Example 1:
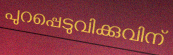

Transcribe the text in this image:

പുറപ്പെടുവിക്കുവിന്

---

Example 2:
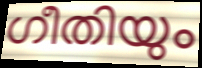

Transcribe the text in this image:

ഗീതിയും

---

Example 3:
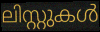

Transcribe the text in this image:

ലിസ്റ്റുകൾ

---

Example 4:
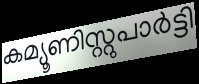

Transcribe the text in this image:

കമ്യൂണിസ്റ്റുപാർട്ടി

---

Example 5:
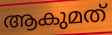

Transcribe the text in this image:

ആകുമത്